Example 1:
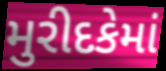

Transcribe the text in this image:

મુરીદકેમાં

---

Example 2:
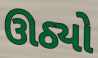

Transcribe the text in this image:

ઊઠ્યો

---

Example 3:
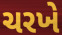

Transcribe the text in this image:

ચરખે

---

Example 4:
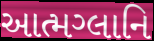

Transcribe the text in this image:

આત્મગ્લાનિ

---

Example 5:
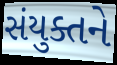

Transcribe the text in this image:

સંયુક્તને